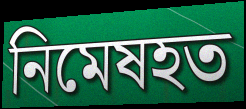
নিমেষহত